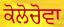
ਕੋਲੋਚੋਵਾ